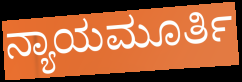
ನ್ಯಾಯಮೂರ್ತಿ